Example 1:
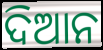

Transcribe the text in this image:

ଦିଆନ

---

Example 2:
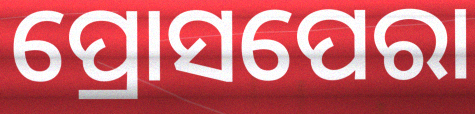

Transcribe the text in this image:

ପ୍ରୋସପେରା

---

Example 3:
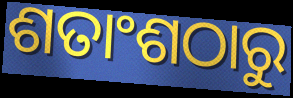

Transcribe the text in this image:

ଶତାଂଶଠାରୁ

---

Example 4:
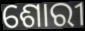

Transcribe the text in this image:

ଶୋରୀ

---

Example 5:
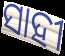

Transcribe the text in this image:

ସାହୀ